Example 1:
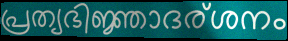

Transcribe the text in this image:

പ്രത്യഭിജ്ഞാദര്ശനം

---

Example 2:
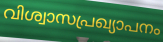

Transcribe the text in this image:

വിശ്വാസപ്രഖ്യാപനം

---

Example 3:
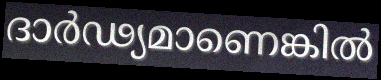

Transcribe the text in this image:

ദാർഢ്യമാണെങ്കിൽ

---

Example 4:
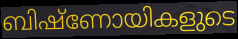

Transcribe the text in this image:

ബിഷ്ണോയികളുടെ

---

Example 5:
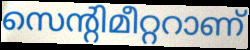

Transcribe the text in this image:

സെന്റിമീറ്ററാണ്